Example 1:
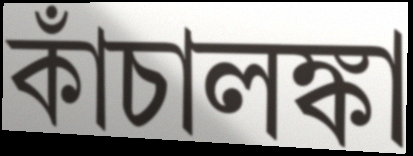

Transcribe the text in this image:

কাঁচালঙ্কা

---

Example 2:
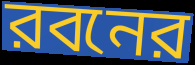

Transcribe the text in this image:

রবনের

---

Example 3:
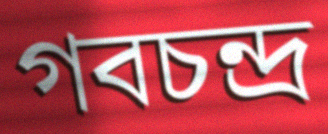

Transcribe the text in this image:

গবচন্দ্র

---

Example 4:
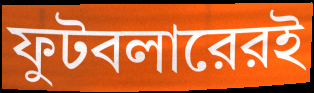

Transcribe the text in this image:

ফুটবলারেরই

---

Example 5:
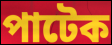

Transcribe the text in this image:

পাটেক